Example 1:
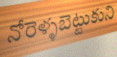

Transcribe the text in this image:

నోరెళ్ళబెట్టుకుని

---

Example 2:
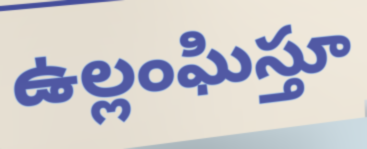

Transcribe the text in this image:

ఉల్లంఘిస్తూ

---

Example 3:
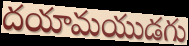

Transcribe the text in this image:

దయామయుడగు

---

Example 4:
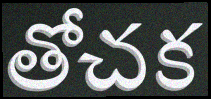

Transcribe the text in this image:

తోచక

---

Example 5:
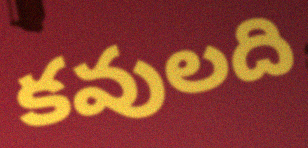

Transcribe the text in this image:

కవులది